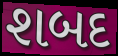
શબદ